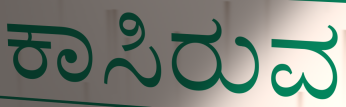
ಕಾಸಿರುವ